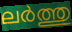
ലർത്തു